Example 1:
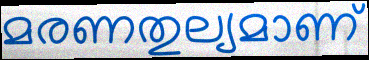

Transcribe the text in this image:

മരണതുല്യമാണ്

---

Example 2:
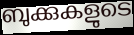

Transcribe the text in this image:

ബുക്കുകളുടെ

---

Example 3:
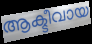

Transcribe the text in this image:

ആക്ടീവായ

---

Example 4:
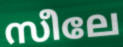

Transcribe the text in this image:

സീലേ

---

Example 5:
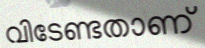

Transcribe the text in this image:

വിടേണ്ടതാണ്